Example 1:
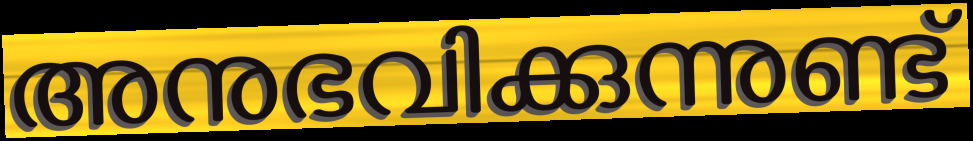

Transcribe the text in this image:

അനുഭവിക്കുന്നുണ്ട്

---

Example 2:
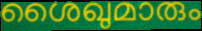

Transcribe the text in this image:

ശൈഖുമാരും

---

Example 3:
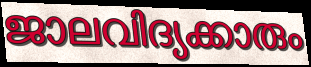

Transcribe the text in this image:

ജാലവിദ്യക്കാരും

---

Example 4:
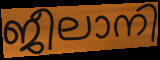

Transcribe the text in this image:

ജീലാനി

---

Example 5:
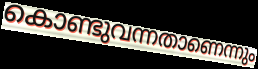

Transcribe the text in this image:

കൊണ്ടുവന്നതാണെന്നും